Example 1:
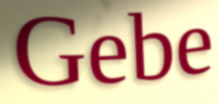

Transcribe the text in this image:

Gebe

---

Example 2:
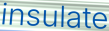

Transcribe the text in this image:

insulate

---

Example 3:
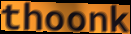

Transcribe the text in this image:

thoonk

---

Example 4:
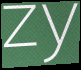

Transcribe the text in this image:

zy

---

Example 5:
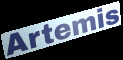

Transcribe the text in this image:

Artemis